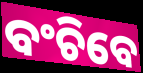
ବଂଚିବେ